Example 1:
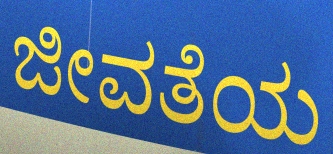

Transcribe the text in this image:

ಜೀವತೆಯ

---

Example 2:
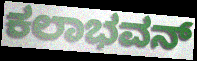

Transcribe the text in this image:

ಕಲಾಭವನ್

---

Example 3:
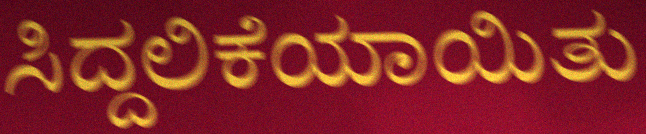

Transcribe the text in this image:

ಸಿದ್ದಲಿಕೆಯಾಯಿತು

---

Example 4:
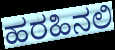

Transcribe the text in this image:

ಹರಹಿನಲಿ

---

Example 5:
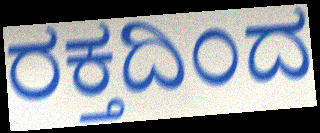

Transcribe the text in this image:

ರಕ್ತದಿಂದ